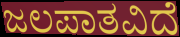
ಜಲಪಾತವಿದೆ